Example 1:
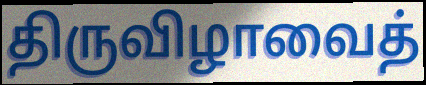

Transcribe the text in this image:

திருவிழாவைத்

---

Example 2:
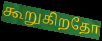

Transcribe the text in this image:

கூறுகிறதோ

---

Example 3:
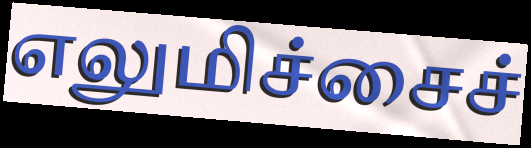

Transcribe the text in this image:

எலுமிச்சைச்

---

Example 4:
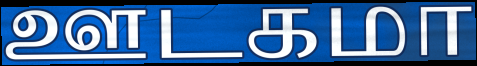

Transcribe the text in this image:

ஊடகமா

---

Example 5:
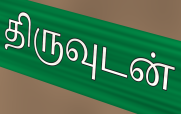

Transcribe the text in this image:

திருவுடன்